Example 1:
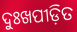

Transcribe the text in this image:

ଦୁଃଖପୀଡ଼ିତ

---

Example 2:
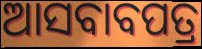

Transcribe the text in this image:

ଆସବାବପତ୍ର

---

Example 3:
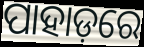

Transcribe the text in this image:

ପାହାଡ଼ରେ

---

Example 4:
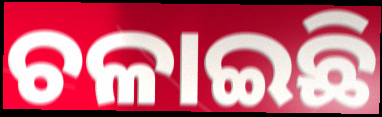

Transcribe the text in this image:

ଚଳାଇଛି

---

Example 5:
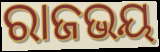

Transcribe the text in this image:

ରାଜଭୟ